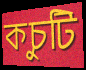
কচুটি